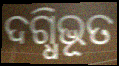
ଦଗ୍ଧିଭୂତ